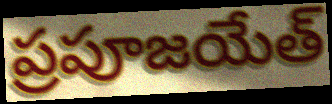
ప్రపూజయేత్